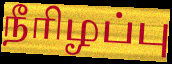
நீரிழப்பு